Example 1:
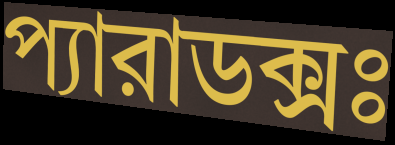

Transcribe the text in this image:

প্যারাডক্সঃ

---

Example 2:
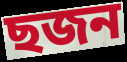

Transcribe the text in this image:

ছজন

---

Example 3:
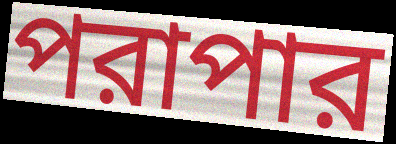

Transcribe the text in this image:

পরাপার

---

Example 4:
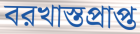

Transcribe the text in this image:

বরখাস্তপ্রাপ্ত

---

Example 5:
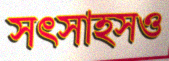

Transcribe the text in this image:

সৎসাহসও